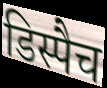
डिस्पैच